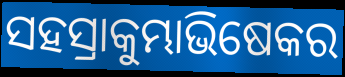
ସହସ୍ରାକୁମ୍ଭାଭିଷେକର